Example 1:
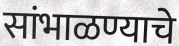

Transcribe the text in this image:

सांभाळण्याचे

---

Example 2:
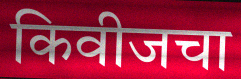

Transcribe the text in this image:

किवीजचा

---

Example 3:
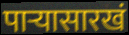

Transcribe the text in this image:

पाऱ्यासारखं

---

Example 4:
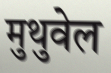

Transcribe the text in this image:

मुथुवेल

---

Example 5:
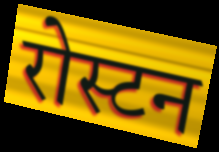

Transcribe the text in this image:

रोस्टन